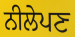
ਨੀਲੇਪਣ